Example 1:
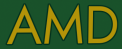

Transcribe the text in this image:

AMD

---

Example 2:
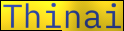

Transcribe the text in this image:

Thinai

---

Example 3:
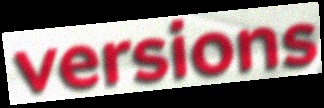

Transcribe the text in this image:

versions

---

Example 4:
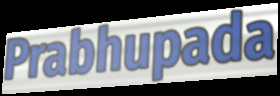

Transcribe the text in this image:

Prabhupada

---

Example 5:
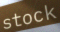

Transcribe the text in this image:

stock